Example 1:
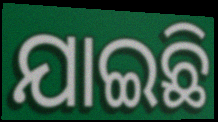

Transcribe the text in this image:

ଯାଇଛି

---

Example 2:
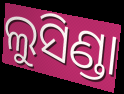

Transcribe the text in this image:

ଲୁସିଣ୍ଡା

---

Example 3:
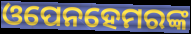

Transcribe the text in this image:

ଓପେନହେମରଙ୍କ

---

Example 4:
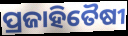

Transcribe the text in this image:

ପ୍ରଜାହିତୈଷୀ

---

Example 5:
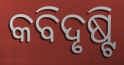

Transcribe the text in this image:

କବିଦୃଷ୍ଟି